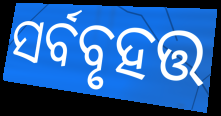
ସର୍ବବୃହତ୍ତ